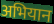
अभियान